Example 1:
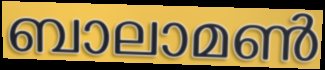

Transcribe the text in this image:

ബാലാമൺ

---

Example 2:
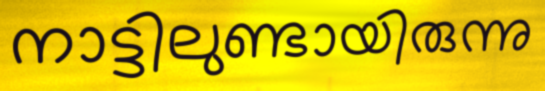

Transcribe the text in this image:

നാട്ടിലുണ്ടായിരുന്നു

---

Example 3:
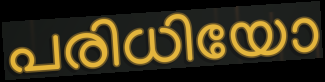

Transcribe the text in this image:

പരിധിയോ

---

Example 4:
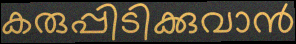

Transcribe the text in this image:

കരുപ്പിടിക്കുവാൻ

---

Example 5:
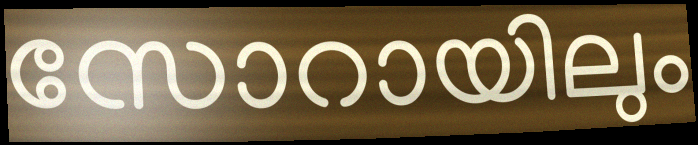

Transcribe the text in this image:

സോറായിലും